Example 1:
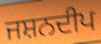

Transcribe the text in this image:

ਜਸ਼ਨਦੀਪ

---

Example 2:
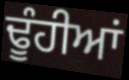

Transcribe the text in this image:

ਢੂੰਹੀਆਂ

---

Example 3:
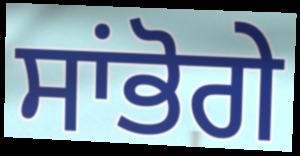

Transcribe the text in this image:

ਸਾਂਭੋਗੇ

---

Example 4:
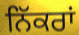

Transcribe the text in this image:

ਨਿੱਕਰਾਂ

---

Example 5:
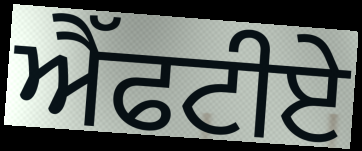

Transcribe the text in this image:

ਐੱਫਟੀਏ